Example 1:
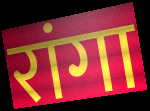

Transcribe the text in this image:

रांगा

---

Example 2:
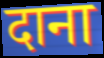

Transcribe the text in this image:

दाना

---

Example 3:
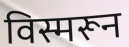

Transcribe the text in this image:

विस्मरून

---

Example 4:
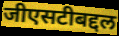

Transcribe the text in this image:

जीएसटीबद्दल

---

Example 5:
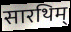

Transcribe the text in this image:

सारथिम्